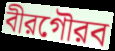
বীরগৌরব